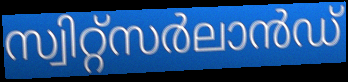
സ്വിറ്റ്സർലാൻഡ്